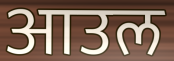
आउल